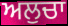
ਅਲੁਚਾ